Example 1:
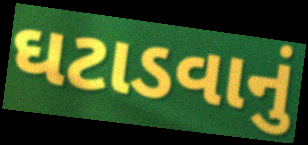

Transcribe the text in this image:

ઘટાડવાનું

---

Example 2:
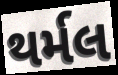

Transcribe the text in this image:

થર્મલ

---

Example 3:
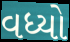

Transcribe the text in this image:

વધ્યો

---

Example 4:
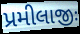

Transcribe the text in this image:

પ્રમીલાજીઃ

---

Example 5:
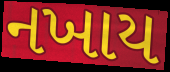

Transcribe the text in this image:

નખાય